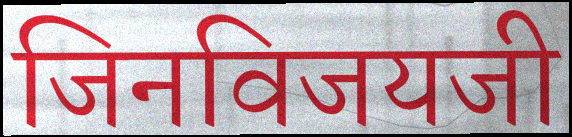
जिनविजयजी